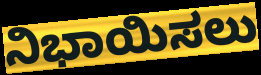
ನಿಭಾಯಿಸಲು